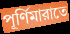
পূর্ণিমারাতে